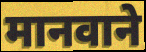
मानवाने